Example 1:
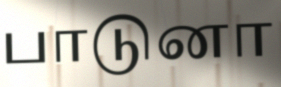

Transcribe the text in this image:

பாடுனா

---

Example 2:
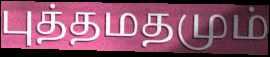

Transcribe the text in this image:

புத்தமதமும்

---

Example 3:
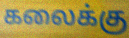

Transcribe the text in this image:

கலைக்கு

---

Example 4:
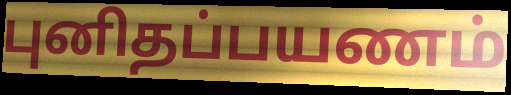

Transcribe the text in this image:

புனிதப்பயணம்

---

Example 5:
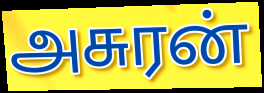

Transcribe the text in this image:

அசுரன்